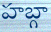
హబ్గా